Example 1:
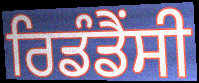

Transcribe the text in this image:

ਰਿਡੰਡੈਂਸੀ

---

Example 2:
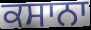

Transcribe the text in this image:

ਕਸਾਨਾ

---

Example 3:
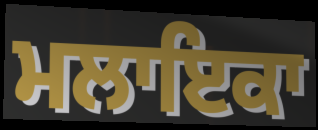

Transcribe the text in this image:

ਮਲਾਇਕਾ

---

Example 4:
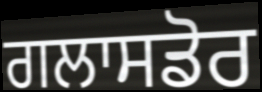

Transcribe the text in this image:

ਗਲਾਸਡੋਰ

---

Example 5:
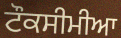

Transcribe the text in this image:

ਟੌਕਸੀਮੀਆ